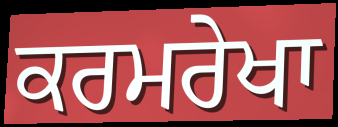
ਕਰਮਰੇਖਾ